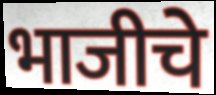
भाजीचे